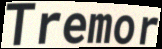
Tremor